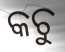
କଚୁ